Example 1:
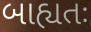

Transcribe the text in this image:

બાહ્યતઃ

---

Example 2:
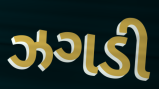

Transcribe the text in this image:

ઝગડી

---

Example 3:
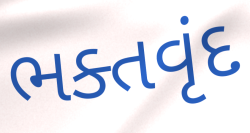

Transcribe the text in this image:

ભક્તવૃંદ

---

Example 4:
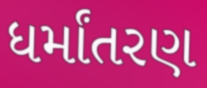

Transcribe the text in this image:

ધર્માંતરણ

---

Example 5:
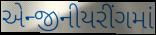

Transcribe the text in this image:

એન્જીનીયરીંગમાં